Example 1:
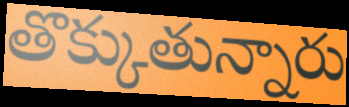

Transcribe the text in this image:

తొక్కుతున్నారు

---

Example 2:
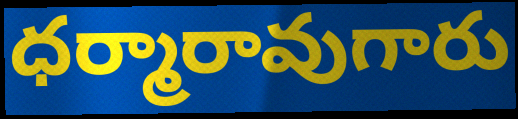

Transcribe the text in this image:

ధర్మారావుగారు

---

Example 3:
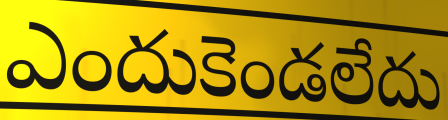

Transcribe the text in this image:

ఎందుకెండలేదు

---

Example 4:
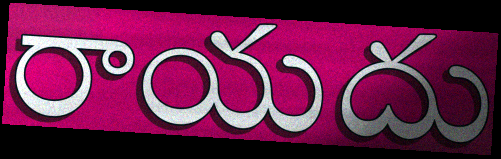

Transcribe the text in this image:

రాయదు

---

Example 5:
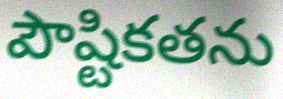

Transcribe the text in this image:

పౌష్టికతను